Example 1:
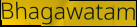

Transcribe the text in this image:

Bhagawatam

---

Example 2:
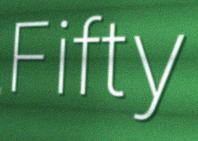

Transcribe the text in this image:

Fifty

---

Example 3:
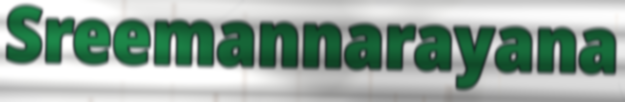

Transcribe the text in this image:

Sreemannarayana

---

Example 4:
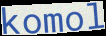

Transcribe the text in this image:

komol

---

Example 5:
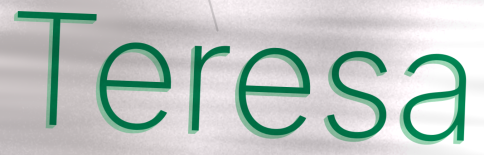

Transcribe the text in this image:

Teresa